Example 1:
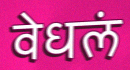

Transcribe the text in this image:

वेधलं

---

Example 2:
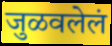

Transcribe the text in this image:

जुळवलेलं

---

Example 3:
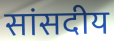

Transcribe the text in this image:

सांसदीय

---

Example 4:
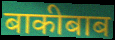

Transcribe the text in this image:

बाकीबाब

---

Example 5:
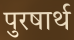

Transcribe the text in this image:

पुरषार्थ